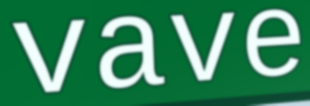
vave